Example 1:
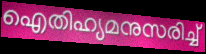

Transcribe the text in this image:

ഐതിഹ്യമനുസരിച്ച്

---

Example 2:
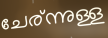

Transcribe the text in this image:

ചേര്ന്നുള്ള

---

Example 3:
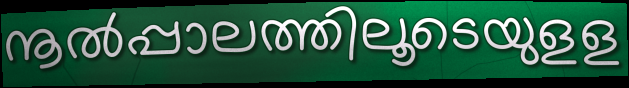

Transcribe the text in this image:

നൂൽപ്പാലത്തിലൂടെയുളള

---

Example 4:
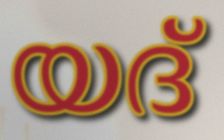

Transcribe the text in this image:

യദ്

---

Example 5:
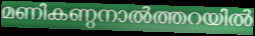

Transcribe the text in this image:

മണികണ്ഠനാൽത്തറയിൽ